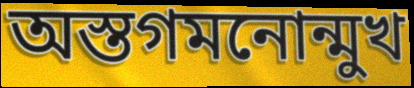
অস্তগমনোন্মুখ